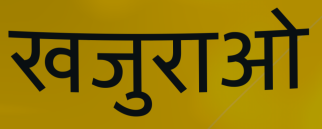
खजुराओ